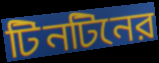
টিনটিনের